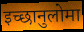
इच्छानुलोमा